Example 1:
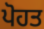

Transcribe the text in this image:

ਪੋਹਤ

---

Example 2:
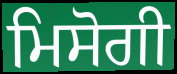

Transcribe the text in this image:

ਮਿਸੋਗੀ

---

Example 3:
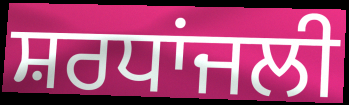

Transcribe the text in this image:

ਸ਼ਰਧਾਂਜਲੀ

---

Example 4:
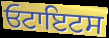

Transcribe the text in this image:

ਓਟਾਇਟਸ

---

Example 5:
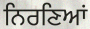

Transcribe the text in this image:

ਨਿਰਣਿਆਂ